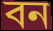
বন